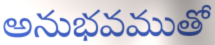
అనుభవముతో